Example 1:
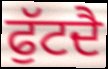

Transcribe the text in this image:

ਫੁੱਟਦੈ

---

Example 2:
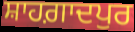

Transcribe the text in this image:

ਸ਼ਾਹਗ਼ਾਦਪੁਰ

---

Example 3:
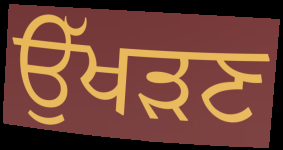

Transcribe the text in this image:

ਉੱਖੜਣ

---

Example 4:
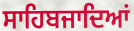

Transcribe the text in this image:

ਸਾਹਿਬਜਾਦਿਆਂ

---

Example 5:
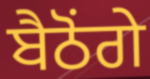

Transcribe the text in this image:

ਬੈਠੋਂਗੇ